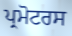
ਪ੍ਰਮੋਟਰਸ